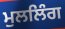
ਮੁਲਲਿੰਗ